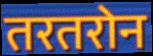
तरतरोन